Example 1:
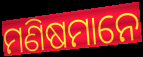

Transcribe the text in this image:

ମଣିଷମାନେ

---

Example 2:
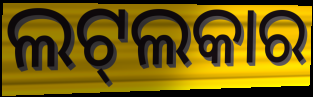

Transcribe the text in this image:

ଲଟ୍‌ଲକାର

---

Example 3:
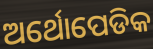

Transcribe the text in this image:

ଅର୍ଥୋପେଡିକ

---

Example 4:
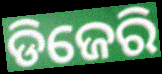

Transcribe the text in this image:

ଡିଜେରି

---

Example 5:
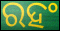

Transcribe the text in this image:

ରହଂ